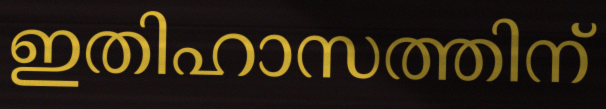
ഇതിഹാസത്തിന്